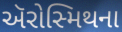
ઍરોસ્મિથના